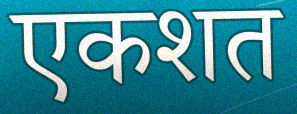
एकशत